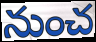
నుంచ